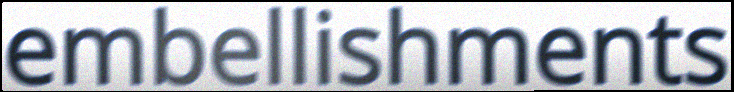
embellishments